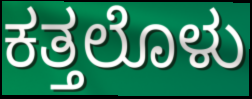
ಕತ್ತಲೊಳು